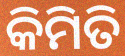
କିମିତି